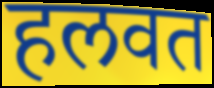
हलवत